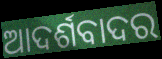
ଆଦର୍ଶବାଦର